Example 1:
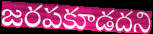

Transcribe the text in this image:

జరపకూడదని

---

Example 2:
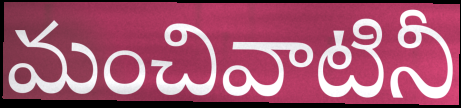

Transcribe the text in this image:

మంచివాటినీ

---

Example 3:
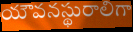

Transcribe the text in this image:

యౌవనస్థురాలిగా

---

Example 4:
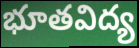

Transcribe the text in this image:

భూతవిద్య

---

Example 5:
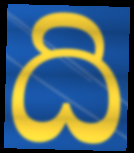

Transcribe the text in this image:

ది